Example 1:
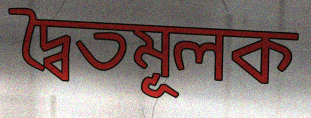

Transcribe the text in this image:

দ্বৈতমূলক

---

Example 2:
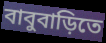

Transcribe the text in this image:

বাবুবাড়িতে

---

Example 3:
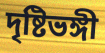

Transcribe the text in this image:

দৃষ্টিভঙ্গী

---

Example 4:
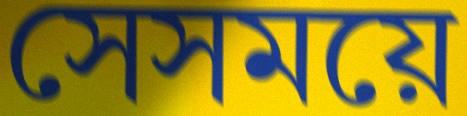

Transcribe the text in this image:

সেসময়ে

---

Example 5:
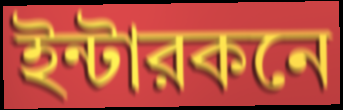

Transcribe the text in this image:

ইন্টারকনে